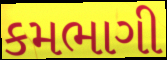
કમભાગી